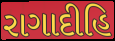
રાગાદીહિ